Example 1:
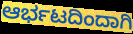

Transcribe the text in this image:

ಆರ್ಭಟದಿಂದಾಗಿ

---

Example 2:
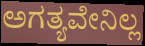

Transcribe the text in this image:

ಅಗತ್ಯವೇನಿಲ್ಲ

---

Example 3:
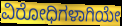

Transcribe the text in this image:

ವಿರೋಧಿಗಳಾಗಿಯೇ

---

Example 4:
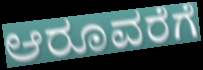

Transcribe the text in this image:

ಆರೂವರೆಗೆ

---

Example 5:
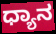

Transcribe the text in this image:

ಧ್ಯಾನ